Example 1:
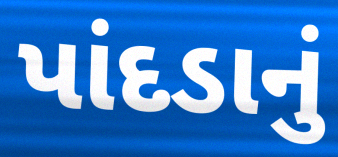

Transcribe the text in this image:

પાંદડાનું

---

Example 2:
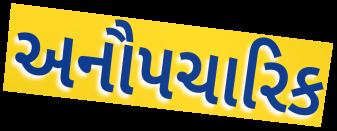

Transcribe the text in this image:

અનૌપચારિક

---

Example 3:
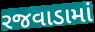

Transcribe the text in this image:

રજવાડામાં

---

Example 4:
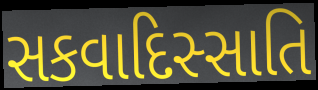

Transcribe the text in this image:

સકવાદિસ્સાતિ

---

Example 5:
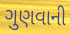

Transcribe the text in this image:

ગુણવાની